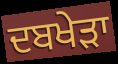
ਦਬਖੇੜਾ